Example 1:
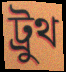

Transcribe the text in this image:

ট্রুথ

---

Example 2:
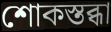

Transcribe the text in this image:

শোকস্তব্ধা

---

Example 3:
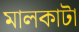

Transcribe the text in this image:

মালকাটা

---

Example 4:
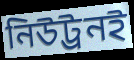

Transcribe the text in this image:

নিউট্রনই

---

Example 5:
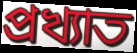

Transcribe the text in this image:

প্রখ্যাত